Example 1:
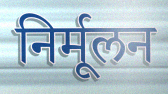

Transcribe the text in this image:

निर्मूलन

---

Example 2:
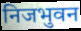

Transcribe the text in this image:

निजभुवन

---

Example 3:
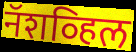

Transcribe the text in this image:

नॅशव्हिल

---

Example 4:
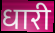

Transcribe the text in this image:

धारी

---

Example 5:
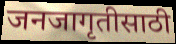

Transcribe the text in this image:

जनजागृतीसाठी